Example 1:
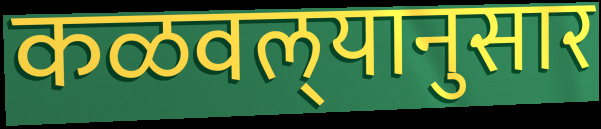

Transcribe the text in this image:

कळवल्यानुसार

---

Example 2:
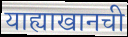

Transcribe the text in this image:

याह्याखानची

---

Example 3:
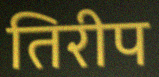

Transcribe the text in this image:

तिरीप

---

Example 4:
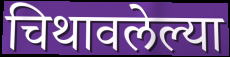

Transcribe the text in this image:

चिथावलेल्या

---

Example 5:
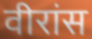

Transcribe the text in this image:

वीरांस